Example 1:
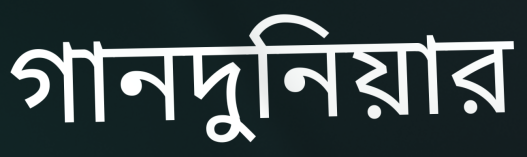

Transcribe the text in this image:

গানদুনিয়ার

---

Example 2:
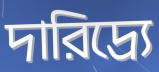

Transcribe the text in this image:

দারিদ্র্যে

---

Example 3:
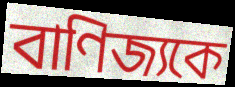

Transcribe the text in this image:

বাণিজ্যকে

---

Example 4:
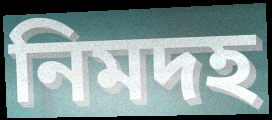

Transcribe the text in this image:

নিমদহ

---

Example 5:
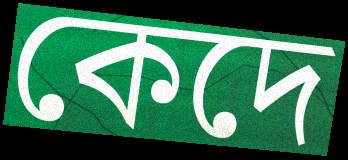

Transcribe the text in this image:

কেদে